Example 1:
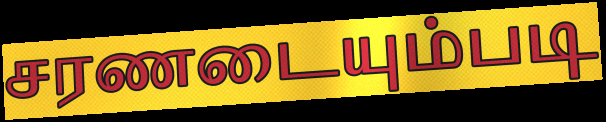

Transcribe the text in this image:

சரணடையும்படி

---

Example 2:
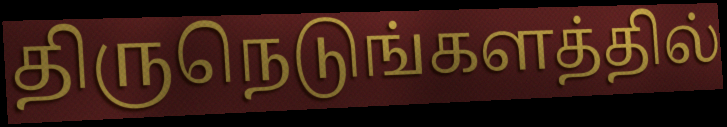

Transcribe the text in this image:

திருநெடுங்களத்தில்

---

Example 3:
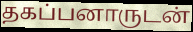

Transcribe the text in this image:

தகப்பனாருடன்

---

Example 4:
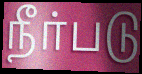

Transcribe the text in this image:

நீர்படு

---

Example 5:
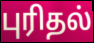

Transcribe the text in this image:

புரிதல்